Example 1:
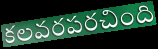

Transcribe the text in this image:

కలవరపరచింది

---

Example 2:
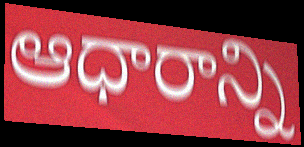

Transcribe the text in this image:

ఆధారాన్ని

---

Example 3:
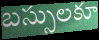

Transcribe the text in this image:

బస్సులకూ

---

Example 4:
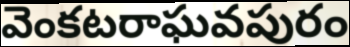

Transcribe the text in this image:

వెంకటరాఘవపురం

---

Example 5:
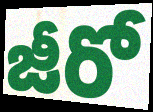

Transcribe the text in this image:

జీరో